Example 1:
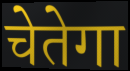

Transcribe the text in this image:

चेतेगा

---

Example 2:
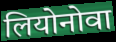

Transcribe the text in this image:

लियोनोवा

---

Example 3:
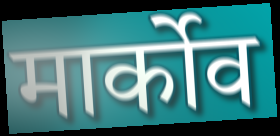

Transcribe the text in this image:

मार्कोव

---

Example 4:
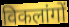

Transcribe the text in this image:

विकलांगों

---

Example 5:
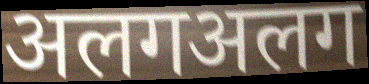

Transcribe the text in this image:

अलगअलग